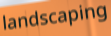
landscaping